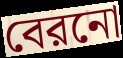
বেরনো